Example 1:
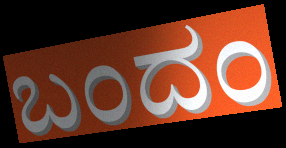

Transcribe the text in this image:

ಬಂದಂ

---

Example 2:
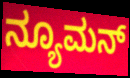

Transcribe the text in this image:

ನ್ಯೂಮನ್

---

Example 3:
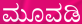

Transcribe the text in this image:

ಮೂವಡಿ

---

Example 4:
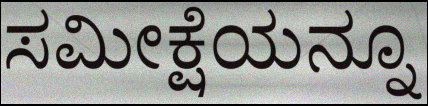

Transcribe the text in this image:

ಸಮೀಕ್ಷೆಯನ್ನೂ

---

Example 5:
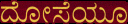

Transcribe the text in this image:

ದೋಸೆಯೂ